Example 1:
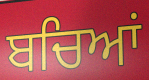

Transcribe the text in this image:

ਬਚਿਆਂ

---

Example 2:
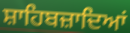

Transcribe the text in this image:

ਸ਼ਾਹਿਬਜ਼ਾਦਿਆਂ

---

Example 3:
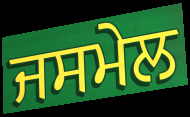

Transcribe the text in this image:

ਜਸਮੇਲ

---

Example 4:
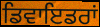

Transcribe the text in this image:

ਡਿਵਾਇਡਰਾਂ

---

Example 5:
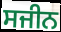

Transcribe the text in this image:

ਸਜੀਨ